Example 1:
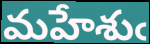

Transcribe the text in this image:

మహేశుఁ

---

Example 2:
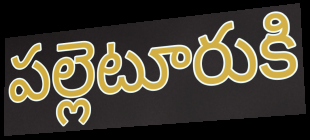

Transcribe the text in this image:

పల్లెటూరుకి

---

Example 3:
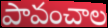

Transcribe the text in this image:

పావంచాల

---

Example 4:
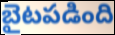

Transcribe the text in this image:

బైటపడింది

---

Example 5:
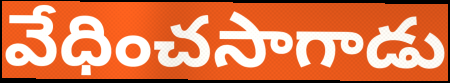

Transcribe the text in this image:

వేధించసాగాడు